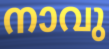
നാവു